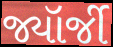
જ્યૉર્જી